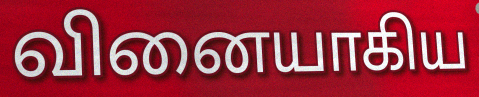
வினையாகிய